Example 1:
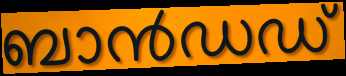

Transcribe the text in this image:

ബാൻഡഡ്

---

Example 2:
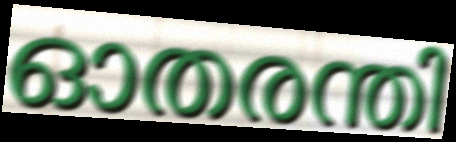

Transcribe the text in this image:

ഓതരന്തി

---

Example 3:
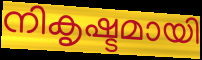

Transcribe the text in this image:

നികൃഷ്ടമായി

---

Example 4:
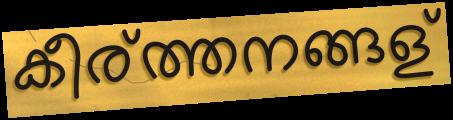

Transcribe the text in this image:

കീര്ത്തനങ്ങള്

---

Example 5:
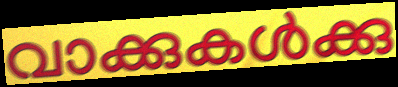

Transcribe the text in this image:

വാക്കുകൾക്കു